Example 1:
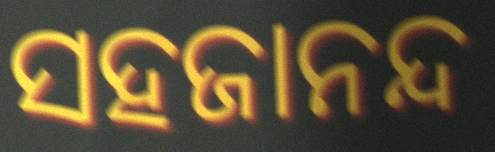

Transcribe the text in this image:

ସହଜାନନ୍ଦ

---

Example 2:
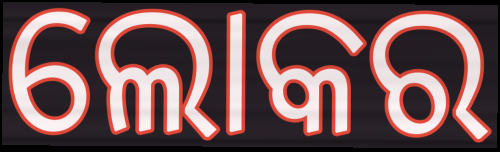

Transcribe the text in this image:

ଲୋକର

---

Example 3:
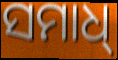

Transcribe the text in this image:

ସମାଧ୍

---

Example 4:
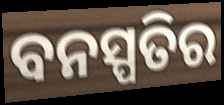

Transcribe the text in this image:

ବନସ୍ପତିର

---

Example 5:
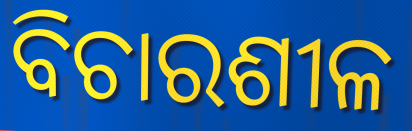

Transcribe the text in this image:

ବିଚାରଶୀଳ